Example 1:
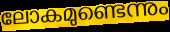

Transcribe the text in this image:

ലോകമുണ്ടെന്നും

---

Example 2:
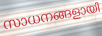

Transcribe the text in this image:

സാധനങ്ങളായി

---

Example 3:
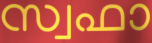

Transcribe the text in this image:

സ്വഫാ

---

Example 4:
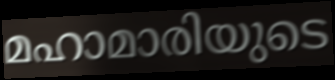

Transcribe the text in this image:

മഹാമാരിയുടെ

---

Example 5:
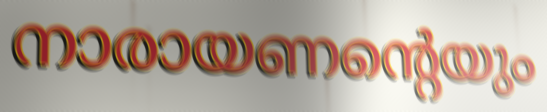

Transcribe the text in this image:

നാരായണന്റെയും